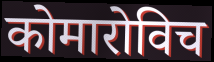
कोमारोविच